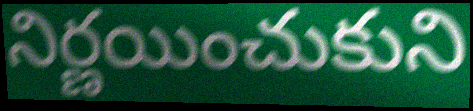
నిర్ణయించుకుని